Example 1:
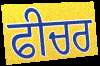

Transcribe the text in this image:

ਫੀਚਰ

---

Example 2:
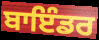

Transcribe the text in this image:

ਬਾਇੰਡਰ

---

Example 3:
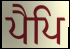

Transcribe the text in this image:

ਪੈਪਿ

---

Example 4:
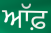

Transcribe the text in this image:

ਆੱਫ਼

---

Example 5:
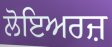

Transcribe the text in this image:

ਲੋਇਅਰਜ਼